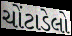
ચોંટાડેલો